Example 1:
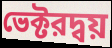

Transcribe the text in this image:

ভেক্টরদ্বয়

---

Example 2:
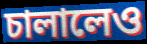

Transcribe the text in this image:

চালালেও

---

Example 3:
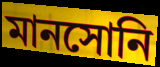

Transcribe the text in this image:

মানসোনি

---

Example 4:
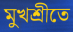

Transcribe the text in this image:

মুখশ্রীতে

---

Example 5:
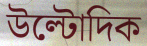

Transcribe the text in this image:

উল্টোদিক